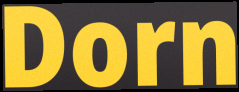
Dorn